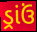
ડ્રાંઉં